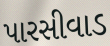
પારસીવાડ